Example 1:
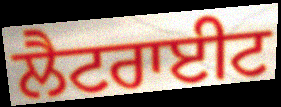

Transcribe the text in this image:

ਲੈਟਰਾਈਟ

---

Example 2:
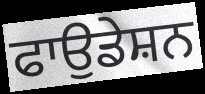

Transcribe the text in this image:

ਫਾਉਡੇਸ਼ਨ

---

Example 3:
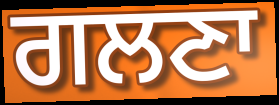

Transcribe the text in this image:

ਗਲਣਾ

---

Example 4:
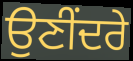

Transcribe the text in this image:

ਉਣੀਂਦਰੇ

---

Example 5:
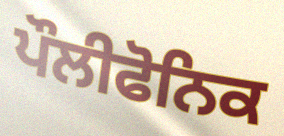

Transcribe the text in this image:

ਪੌਲੀਫੋਨਿਕ